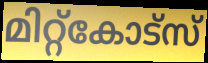
മിറ്റ്കോട്സ്